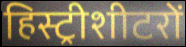
हिस्ट्रीशीटरों